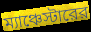
ম্যাঞ্চেস্টারের